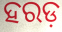
ହରଡ଼